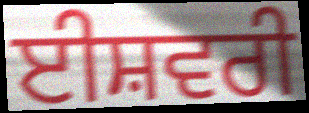
ਈਸ਼ਵਰੀ